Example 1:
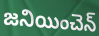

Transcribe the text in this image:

జనియించెన్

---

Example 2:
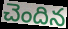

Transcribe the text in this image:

చెందిన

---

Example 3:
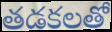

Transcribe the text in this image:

తడకలతో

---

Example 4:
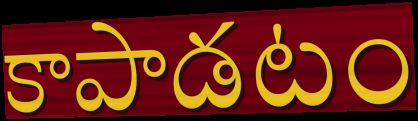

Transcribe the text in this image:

కాపాడటం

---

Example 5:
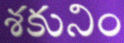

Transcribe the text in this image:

శకునిం